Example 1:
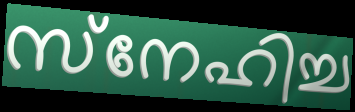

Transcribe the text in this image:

സ്‌നേഹിച്ച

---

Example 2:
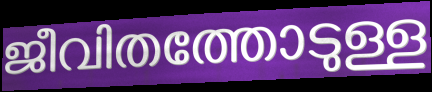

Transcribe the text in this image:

ജീവിതത്തോടുള്ള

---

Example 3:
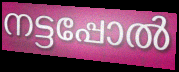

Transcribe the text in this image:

നട്ടപ്പോൽ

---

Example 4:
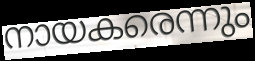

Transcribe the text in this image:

നായകരെന്നും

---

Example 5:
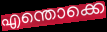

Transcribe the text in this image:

എന്തൊക്കെ